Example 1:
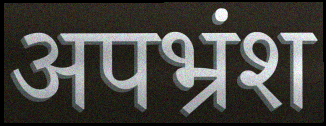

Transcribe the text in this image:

अपभ्रंश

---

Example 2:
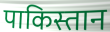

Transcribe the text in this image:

पाकिस्‍तान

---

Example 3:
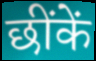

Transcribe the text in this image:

छींकें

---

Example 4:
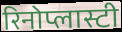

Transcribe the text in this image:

रिनोप्लास्टी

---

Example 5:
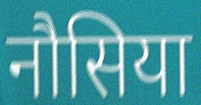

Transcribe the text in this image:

नौसिया